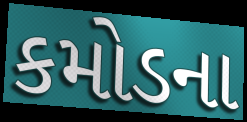
કમોડના